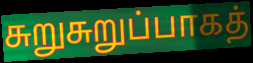
சுறுசுறுப்பாகத்